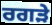
ਰਗੜੇ